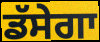
ਡੱਸੇਗਾ